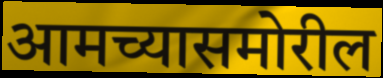
आमच्यासमोरील